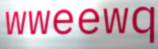
wweewq